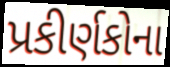
પ્રકીર્ણકોના